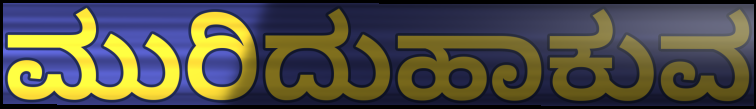
ಮುರಿದುಹಾಕುವ